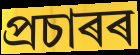
প্ৰচাৰৰ